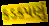
કડકપણું